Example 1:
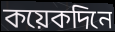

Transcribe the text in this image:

কয়েকদিনে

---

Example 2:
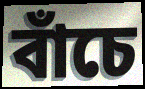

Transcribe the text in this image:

বাঁচে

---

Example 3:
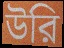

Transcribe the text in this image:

উরি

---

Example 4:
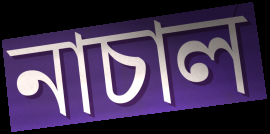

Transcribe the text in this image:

নাচাল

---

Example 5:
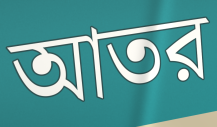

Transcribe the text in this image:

আতর